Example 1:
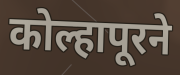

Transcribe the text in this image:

कोल्हापूरने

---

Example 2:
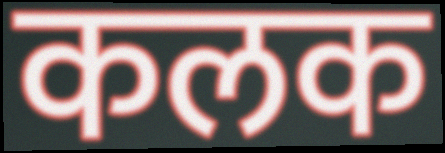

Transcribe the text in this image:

कलक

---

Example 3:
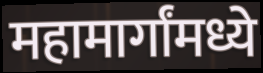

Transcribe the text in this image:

महामार्गांमध्ये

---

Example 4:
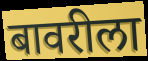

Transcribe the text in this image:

बावरीला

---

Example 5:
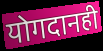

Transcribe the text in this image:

योगदानही